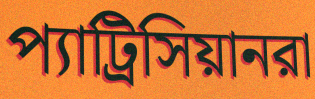
প্যাট্রিসিয়ানরা